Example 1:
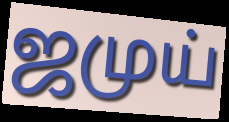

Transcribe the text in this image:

ஜமுய்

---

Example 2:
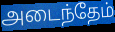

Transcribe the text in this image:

அடைந்தேம்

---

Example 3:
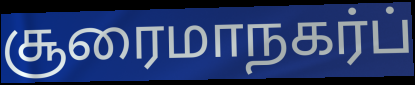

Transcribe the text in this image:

சூரைமாநகர்ப்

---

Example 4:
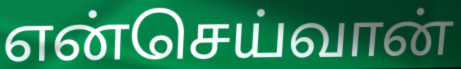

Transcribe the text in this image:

என்செய்வான்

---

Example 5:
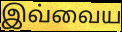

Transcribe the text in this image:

இவ்வைய